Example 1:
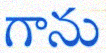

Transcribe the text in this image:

గాను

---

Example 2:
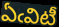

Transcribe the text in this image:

ఏఁవిటీ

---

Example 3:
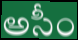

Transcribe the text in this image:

అసీం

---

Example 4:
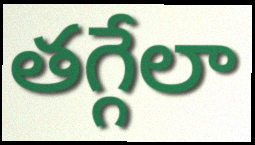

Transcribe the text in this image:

తగ్గేలా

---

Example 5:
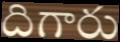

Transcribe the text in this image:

దిగారు